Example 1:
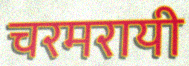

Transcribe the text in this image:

चरमरायी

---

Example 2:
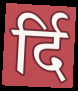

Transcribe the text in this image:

र्दि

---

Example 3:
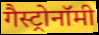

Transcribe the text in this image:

गैस्ट्रोनॉमी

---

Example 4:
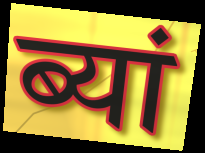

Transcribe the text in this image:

ब्यां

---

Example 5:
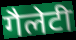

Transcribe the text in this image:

गैलेटी